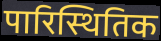
पारिस्थितिक